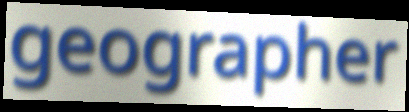
geographer